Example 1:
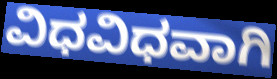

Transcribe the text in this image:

ವಿಧವಿಧವಾಗಿ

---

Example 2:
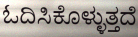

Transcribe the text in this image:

ಓದಿಸಿಕೊಳ್ಳುತ್ತದೆ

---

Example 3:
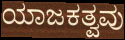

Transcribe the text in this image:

ಯಾಜಕತ್ವವು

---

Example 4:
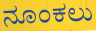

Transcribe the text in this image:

ನೂಂಕಲು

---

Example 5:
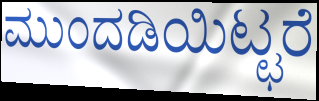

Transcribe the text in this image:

ಮುಂದಡಿಯಿಟ್ಟರೆ